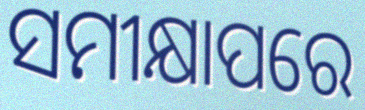
ସମୀକ୍ଷାପରେ